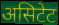
असिटेट